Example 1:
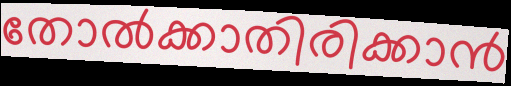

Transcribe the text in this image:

തോൽക്കാതിരിക്കാൻ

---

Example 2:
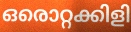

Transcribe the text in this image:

ഒരൊറ്റക്കിളി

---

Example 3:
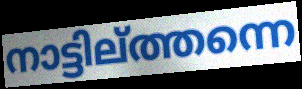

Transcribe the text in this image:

നാട്ടില്ത്തന്നെ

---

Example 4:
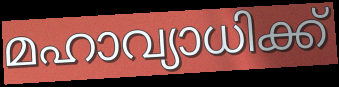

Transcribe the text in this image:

മഹാവ്യാധിക്ക്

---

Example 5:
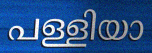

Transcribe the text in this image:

പള്ളിയാ